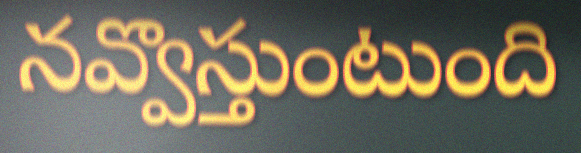
నవ్వొస్తుంటుంది